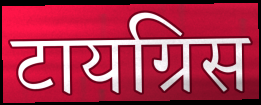
टायग्रिस